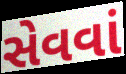
સેવવાં